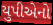
યુપીએનો